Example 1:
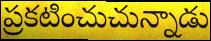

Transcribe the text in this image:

ప్రకటించుచున్నాడు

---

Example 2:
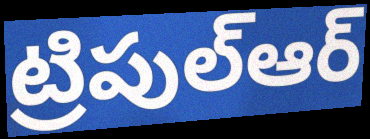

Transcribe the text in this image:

ట్రిపుల్ఆర్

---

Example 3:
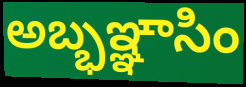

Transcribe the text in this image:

అబ్భఞ్ఞాసిం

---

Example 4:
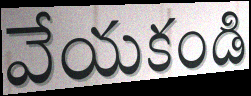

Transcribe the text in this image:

వేయకండి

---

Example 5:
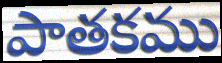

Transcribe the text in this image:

పాతకము